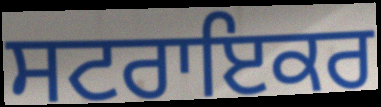
ਸਟਰਾਇਕਰ